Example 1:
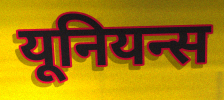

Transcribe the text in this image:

यूनियन्स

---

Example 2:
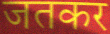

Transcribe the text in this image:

जतकर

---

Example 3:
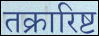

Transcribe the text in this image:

तक्रारिष्ट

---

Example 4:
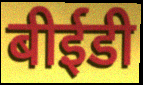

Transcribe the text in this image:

बीईडी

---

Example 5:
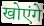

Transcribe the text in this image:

खोएंगे